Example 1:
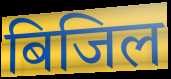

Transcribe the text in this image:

बिजिल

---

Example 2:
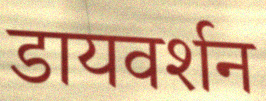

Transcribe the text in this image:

डायवर्शन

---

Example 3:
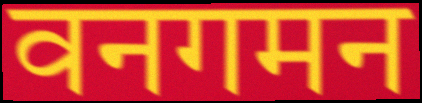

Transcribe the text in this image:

वनगमन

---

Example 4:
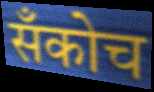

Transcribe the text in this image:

सँकोच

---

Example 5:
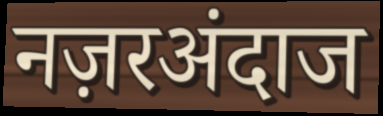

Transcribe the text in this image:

नज़रअंदाज